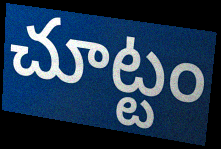
చూట్టం